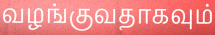
வழங்குவதாகவும்